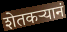
शेतकऱ्यानं